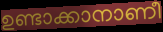
ഉണ്ടാക്കാനാണീ